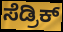
ಸೆಡ್ರಿಕ್